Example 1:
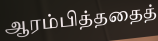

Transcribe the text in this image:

ஆரம்பித்ததைத்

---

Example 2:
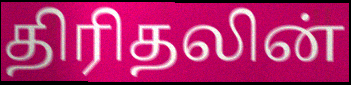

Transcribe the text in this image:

திரிதலின்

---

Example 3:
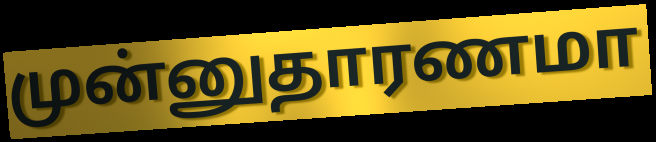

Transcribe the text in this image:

முன்னுதாரணமா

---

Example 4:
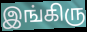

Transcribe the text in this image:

இங்கிரு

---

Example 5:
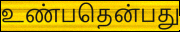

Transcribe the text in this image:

உண்பதென்பது